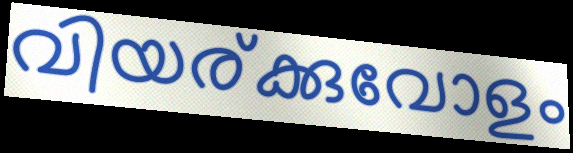
വിയര്ക്കുവോളം